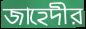
জাহেদীর